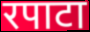
रपाटा